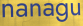
nanagu